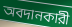
অবদানকারী